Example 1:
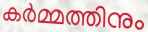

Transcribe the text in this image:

കർമ്മത്തിനും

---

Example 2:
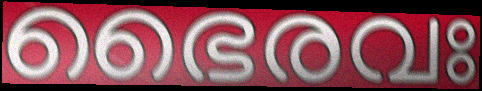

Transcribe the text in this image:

ഭൈരവഃ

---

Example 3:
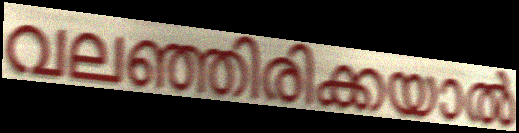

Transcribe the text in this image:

വലഞ്ഞിരിക്കയാൽ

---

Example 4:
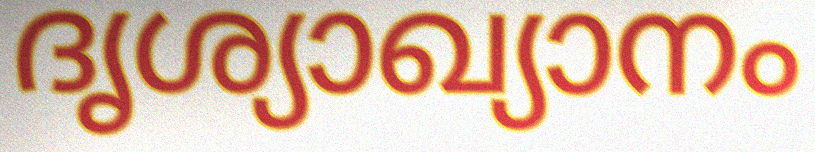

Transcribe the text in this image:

ദൃശ്യാഖ്യാനം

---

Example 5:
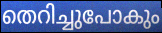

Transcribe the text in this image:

തെറിച്ചുപോകും